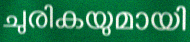
ചുരികയുമായി